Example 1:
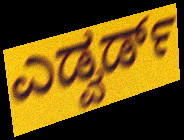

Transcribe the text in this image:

ಎಡ್ವರ್ಡ್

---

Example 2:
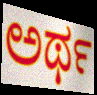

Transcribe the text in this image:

ಅರ್ಥ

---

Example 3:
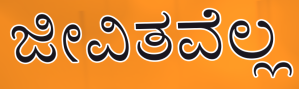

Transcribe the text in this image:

ಜೀವಿತವೆಲ್ಲ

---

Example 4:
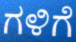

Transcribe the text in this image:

ಗಳಿಗೆ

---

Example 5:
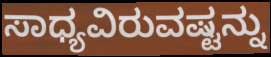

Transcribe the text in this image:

ಸಾಧ್ಯವಿರುವಷ್ಟನ್ನು